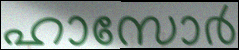
ഹാസോർ